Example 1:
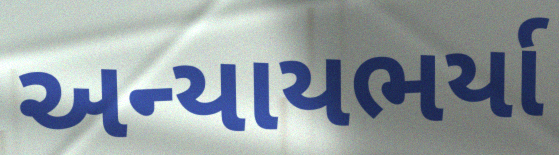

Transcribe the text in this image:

અન્યાયભર્યા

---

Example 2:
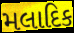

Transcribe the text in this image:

મલાદિક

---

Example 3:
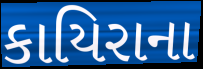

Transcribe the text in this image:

કાયિરાના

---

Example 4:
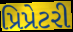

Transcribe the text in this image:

પ્રિપ્રેટરી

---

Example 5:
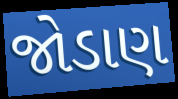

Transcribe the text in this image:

જોડાણ